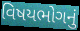
વિષયભોગનું